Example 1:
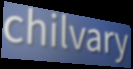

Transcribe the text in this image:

chilvary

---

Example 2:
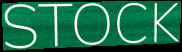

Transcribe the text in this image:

STOCK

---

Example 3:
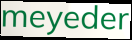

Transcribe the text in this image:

meyeder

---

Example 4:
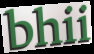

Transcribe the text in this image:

bhii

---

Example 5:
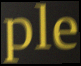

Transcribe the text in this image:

ple